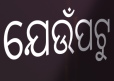
ଯେଉଁପଟୁ